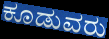
ಕೂಡುವರು